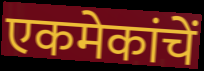
एकमेकांचें